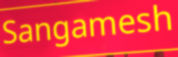
Sangamesh